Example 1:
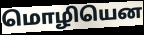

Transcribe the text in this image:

மொழியென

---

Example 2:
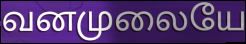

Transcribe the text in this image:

வனமுலையே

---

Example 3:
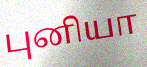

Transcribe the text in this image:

புனியா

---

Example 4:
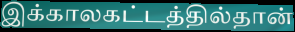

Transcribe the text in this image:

இக்காலகட்டத்தில்தான்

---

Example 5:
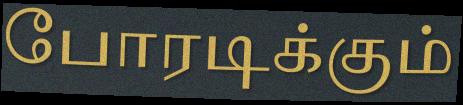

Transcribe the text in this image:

போரடிக்கும்